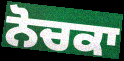
ਨੋਚਕਾ